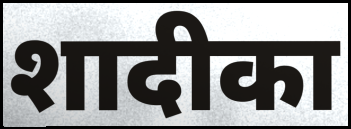
शादीका